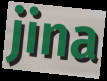
jina